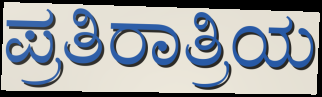
ಪ್ರತಿರಾತ್ರಿಯ